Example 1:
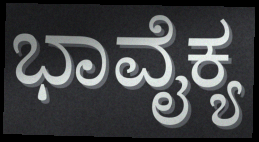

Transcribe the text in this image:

ಭಾವೈಕ್ಯ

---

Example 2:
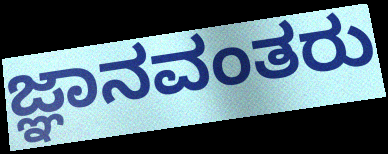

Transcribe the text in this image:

ಜ್ಞಾನವಂತರು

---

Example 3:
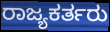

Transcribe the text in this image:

ರಾಜ್ಯಕರ್ತರು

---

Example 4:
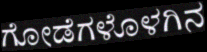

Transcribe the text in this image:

ಗೋಡೆಗಳೊಳಗಿನ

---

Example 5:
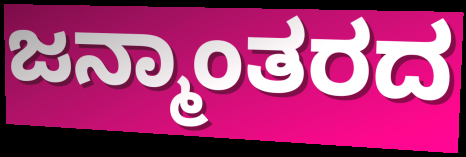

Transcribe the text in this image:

ಜನ್ಮಾಂತರದ